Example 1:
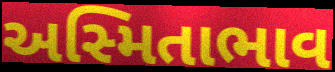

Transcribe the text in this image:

અસ્મિતાભાવ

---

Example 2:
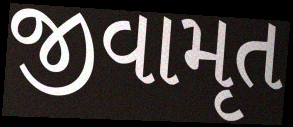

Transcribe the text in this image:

જીવામૃત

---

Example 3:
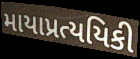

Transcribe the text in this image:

માયાપ્રત્યયિકી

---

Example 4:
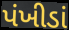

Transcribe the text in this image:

પંખીડાં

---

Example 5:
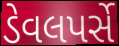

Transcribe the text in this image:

ડેવલપર્સે